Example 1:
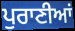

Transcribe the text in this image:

ਪੁਰਾਣੀਆਂ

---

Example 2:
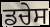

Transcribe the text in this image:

ਡਚੇਸ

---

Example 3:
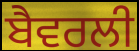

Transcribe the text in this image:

ਬੈਵਰਲੀ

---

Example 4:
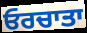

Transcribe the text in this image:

ਓਰਚਾਤਾ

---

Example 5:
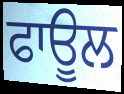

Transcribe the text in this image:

ਫਾਊਲ